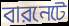
বারনেটে